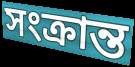
সংক্রান্ত